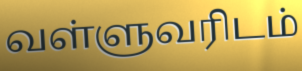
வள்ளுவரிடம்